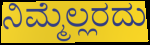
ನಿಮ್ಮೆಲ್ಲರದು